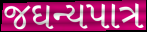
જઘન્યપાત્ર